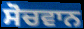
ਸੋਚਵਾਨ